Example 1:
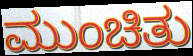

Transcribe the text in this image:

ಮುಂಚಿತು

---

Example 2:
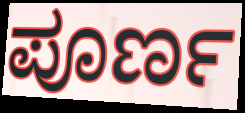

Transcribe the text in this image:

ಪೂರ್ಣ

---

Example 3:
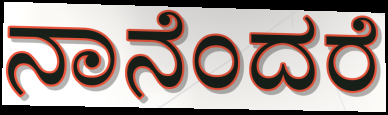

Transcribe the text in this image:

ನಾನೆಂದರೆ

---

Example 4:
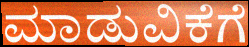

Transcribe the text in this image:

ಮಾಡುವಿಕೆಗೆ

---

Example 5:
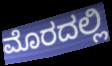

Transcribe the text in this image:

ಮೊರದಲ್ಲಿ